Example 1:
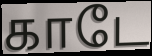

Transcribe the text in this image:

காடே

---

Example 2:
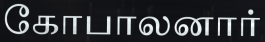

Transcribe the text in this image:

கோபாலனார்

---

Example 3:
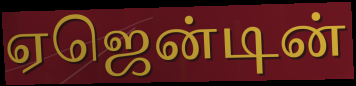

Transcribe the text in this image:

ஏஜென்டின்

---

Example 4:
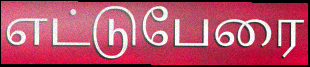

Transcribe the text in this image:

எட்டுபேரை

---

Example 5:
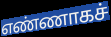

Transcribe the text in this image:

எண்ணாகச்